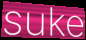
suke